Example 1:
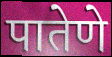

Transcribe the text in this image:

पातेणे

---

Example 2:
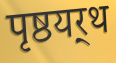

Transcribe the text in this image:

पृष्ठयर्थ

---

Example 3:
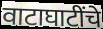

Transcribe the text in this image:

वाटाघाटींचे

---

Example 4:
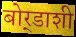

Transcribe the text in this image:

बोर्डाशी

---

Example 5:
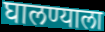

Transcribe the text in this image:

घालण्याला